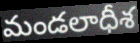
మండలాధీశ